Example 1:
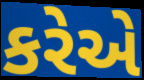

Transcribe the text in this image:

કરેએ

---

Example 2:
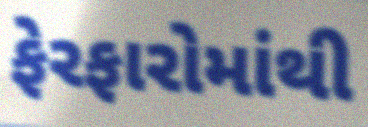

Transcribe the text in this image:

ફેરફારોમાંથી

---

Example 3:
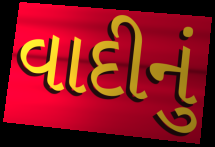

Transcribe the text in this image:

વાદીનું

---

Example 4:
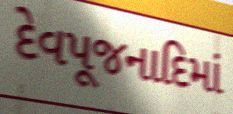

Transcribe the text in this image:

દેવપૂજનાદિમાં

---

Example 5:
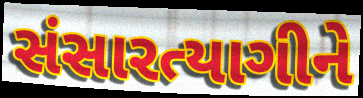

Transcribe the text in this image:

સંસારત્યાગીને